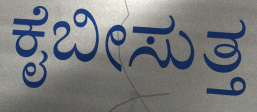
ಕೈಬೀಸುತ್ತ